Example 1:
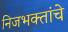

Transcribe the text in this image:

निजभक्तांचे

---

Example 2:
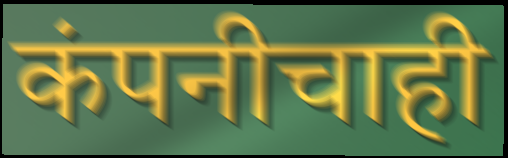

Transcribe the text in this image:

कंपनीचाही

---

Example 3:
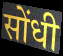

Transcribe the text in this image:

सोंधी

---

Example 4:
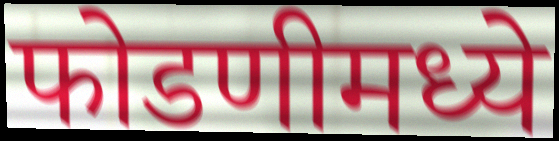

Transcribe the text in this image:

फोडणीमध्ये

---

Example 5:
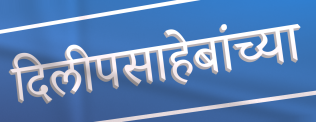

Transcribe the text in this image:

दिलीपसाहेबांच्या